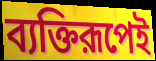
ব্যক্তিরূপেই